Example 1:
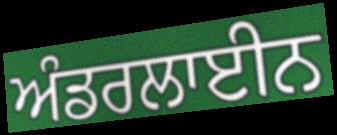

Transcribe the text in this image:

ਅੰਡਰਲਾਈਨ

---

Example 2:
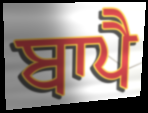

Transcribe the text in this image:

ਬਾਪੈ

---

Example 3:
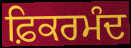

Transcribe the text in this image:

ਫ਼ਿਕਰਮੰਦ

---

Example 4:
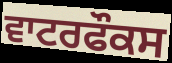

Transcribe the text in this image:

ਵਾਟਰਫੌਕਸ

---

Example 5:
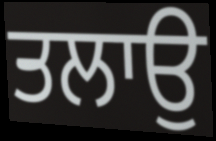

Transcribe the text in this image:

ਤਲਾਉ